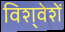
विश्वेशें